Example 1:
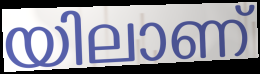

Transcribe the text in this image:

യിലാണ്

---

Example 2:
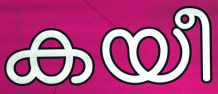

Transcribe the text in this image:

കയീ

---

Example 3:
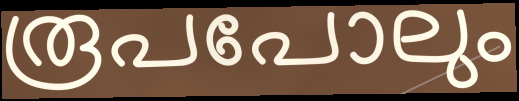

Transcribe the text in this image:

രൂപപോലും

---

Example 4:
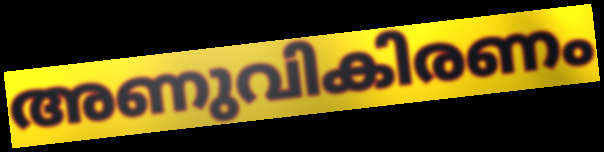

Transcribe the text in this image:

അണുവികിരണം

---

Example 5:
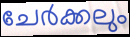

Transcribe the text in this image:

ചേർക്കലും